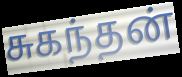
சுகந்தன்